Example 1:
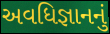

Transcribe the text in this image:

અવધિજ્ઞાનનું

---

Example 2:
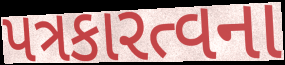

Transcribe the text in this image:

પત્રકારત્વના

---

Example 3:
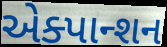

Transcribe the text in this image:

એક્પાન્શન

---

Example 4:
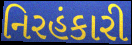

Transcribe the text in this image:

નિરહંકારી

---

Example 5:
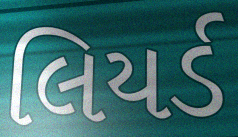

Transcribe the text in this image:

લિયર્ડ